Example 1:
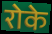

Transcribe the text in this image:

रोके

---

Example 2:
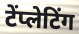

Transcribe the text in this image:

टेंप्लेटिंग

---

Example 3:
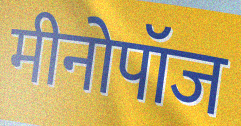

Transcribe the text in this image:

मीनोपॉज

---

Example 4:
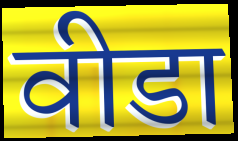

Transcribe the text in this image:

वीडा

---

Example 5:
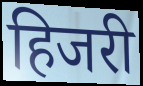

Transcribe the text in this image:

हिजरी